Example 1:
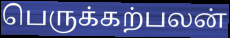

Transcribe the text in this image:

பெருக்கற்பலன்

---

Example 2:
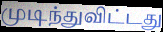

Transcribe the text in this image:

முடிந்துவிட்டது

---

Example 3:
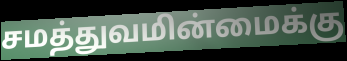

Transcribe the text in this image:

சமத்துவமின்மைக்கு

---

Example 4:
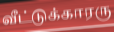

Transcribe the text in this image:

வீட்டுக்காரரு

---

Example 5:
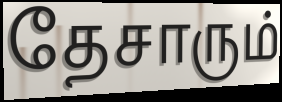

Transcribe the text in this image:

தேசாரும்